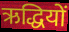
ऋद्धियों